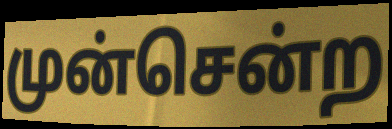
முன்சென்ற